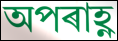
অপৰাহ্ণ